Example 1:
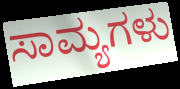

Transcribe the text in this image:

ಸಾಮ್ಯಗಳು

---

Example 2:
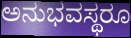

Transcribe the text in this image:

ಅನುಭವಸ್ಥರೂ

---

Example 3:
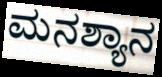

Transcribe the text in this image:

ಮನಶ್ಯಾನ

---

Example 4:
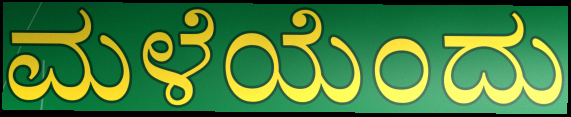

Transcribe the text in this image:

ಮಳೆಯೆಂದು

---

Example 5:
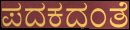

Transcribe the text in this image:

ಪದಕದಂತೆ